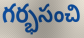
గర్భసంచి